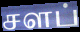
சளப்